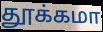
தூக்கமா